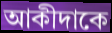
আকীদাকে